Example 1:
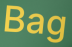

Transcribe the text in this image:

Bag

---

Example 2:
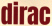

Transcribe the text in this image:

dirac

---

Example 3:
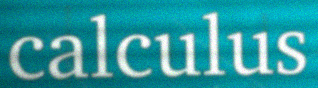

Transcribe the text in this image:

calculus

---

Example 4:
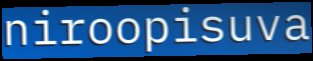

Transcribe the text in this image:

niroopisuva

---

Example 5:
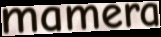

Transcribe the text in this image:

mamera